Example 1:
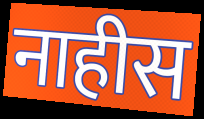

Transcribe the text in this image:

नाहीस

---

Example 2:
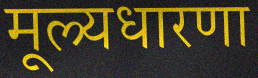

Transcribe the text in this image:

मूल्यधारणा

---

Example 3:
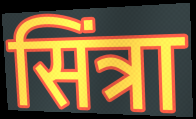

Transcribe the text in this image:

सिंत्रा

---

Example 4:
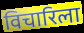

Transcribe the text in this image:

विचारिला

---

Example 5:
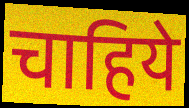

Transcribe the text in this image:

चाहिये